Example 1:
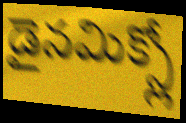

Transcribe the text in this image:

డైనమిక్స్లో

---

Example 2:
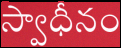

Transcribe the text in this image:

స్వాధీనం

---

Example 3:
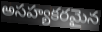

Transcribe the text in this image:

అసహ్యకరమైన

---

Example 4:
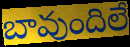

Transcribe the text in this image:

బావుందిలే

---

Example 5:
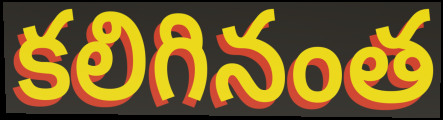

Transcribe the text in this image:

కలిగినంత